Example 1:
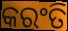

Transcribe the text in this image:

କରଂତି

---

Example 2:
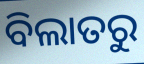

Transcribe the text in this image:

ବିଲାତରୁ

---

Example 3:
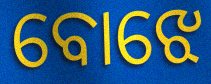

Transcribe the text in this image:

ବୋଝେ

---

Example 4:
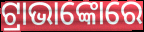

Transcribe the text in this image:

ଟ୍ରାଭାଙ୍କୋରେ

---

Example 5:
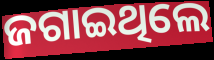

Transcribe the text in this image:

ଜଗାଇଥିଲେ